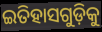
ଇତିହାସଗୁଡ଼ିକୁ